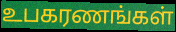
உபகரணங்கள்